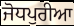
ਜੋਧਪੁਰੀਆ